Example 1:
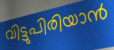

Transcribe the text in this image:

വിട്ടുപിരിയാൻ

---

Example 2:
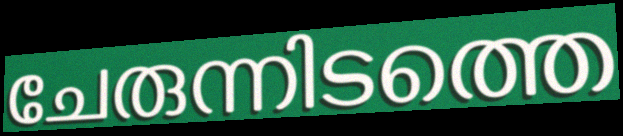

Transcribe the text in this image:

ചേരുന്നിടത്തെ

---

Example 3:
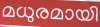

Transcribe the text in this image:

മധുരമായി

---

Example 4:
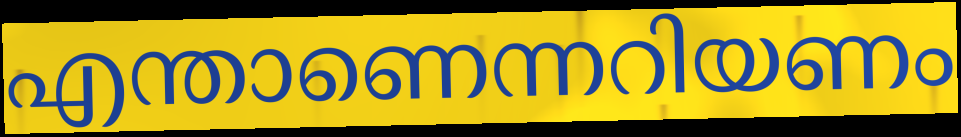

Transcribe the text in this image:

എന്താണെന്നറിയണം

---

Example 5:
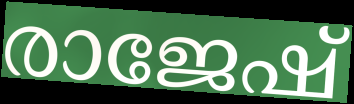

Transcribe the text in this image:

രാജേഷ്